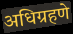
अधिग्रहणे